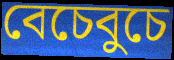
বেচেবুচে